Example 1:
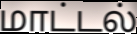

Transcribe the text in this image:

மாட்டல்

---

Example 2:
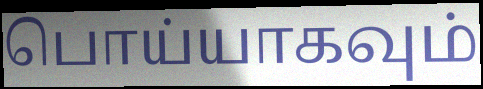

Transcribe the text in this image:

பொய்யாகவும்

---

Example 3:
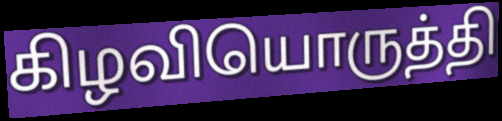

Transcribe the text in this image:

கிழவியொருத்தி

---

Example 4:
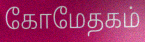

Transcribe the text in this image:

கோமேதகம்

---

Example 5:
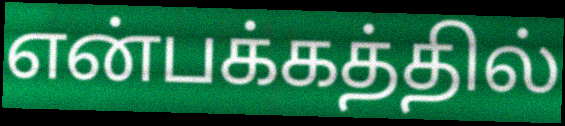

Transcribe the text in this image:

என்பக்கத்தில்